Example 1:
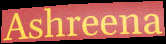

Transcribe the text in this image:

Ashreena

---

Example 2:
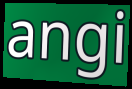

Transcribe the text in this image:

angi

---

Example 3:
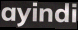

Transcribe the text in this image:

ayindi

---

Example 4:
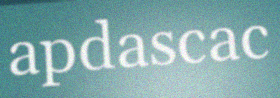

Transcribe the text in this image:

apdascac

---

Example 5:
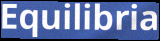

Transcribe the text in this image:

Equilibria